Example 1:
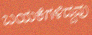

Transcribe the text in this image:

ಬಯಕೆಗಳಿದ್ದವು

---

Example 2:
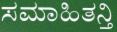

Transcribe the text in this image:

ಸಮಾಹಿತನ್ತಿ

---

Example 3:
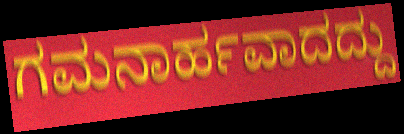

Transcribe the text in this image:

ಗಮನಾರ್ಹವಾದದ್ದು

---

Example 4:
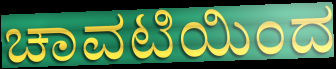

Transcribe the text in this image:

ಚಾವಟಿಯಿಂದ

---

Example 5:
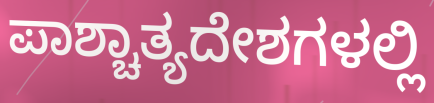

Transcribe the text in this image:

ಪಾಶ್ಚಾತ್ಯದೇಶಗಳಲ್ಲಿ